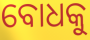
ବୋଧକୁ